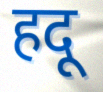
हदू